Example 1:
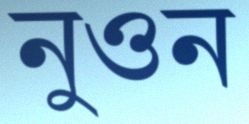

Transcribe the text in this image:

নুওন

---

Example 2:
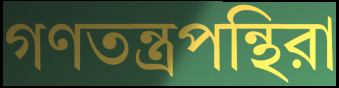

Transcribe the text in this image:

গণতন্ত্রপন্থিরা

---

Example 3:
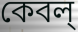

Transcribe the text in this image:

কেবল্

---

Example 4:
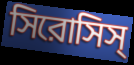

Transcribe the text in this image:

সিরোসিস্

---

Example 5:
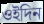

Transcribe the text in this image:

ওইদিন